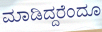
ಮಾಡಿದ್ದರೆಂದೂ